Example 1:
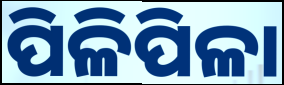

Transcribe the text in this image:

ପିଳିପିଳା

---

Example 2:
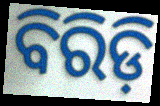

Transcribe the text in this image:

ବିରିଡ଼ି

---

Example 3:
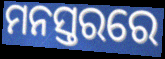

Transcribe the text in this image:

ମନସ୍ତରରେ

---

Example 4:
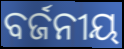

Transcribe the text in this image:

ବର୍ଜନୀୟ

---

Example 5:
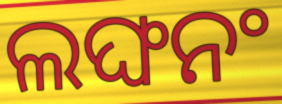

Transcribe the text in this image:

ଲଙ୍ଘନଂ